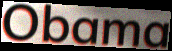
Obama